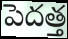
పెదత్త